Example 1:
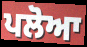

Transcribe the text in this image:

ਪਲੋਆ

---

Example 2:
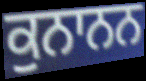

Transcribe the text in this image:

ਕੁਨਾਨਨ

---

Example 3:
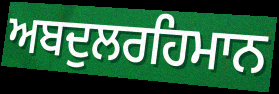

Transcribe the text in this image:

ਅਬਦੁਲਰਹਿਮਾਨ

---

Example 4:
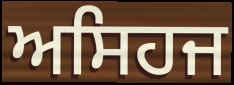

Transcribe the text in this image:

ਅਸਿਹਜ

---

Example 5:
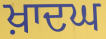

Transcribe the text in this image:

ਖ਼ਾਦਘ